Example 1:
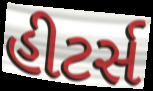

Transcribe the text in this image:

હીટર્સ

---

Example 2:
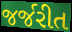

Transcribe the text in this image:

જર્જરીત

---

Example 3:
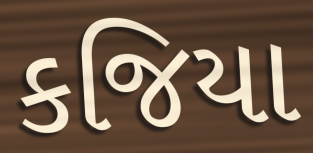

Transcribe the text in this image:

કજિયા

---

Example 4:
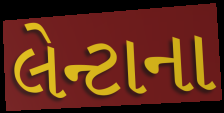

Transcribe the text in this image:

લેન્ટાના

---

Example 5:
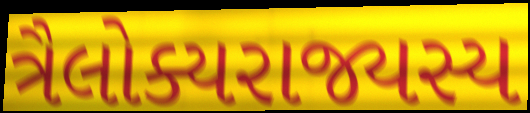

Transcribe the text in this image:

ત્રૈલોક્યરાજ્યસ્ય